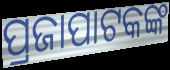
ପ୍ରଜାପାଟକଙ୍କ